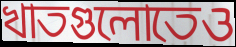
খাতগুলোতেও